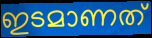
ഇടമാണത്